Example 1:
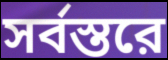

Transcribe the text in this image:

সর্বস্তরে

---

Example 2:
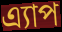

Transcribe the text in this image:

এ্যাপ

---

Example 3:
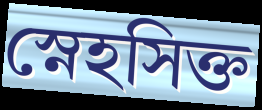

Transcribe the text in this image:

স্নেহসিক্ত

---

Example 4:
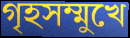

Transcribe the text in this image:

গৃহসম্মুখে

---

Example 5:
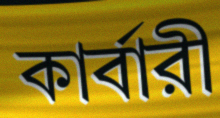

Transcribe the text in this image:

কার্বারী